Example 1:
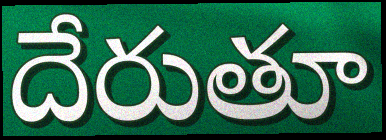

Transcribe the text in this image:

దేరుతూ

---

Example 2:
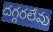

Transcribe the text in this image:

దగ్గరలేవు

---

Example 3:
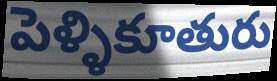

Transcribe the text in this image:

పెళ్ళికూతురు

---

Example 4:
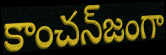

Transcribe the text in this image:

కాంచన్‌జంగా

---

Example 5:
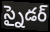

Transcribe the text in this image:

స్నైడర్